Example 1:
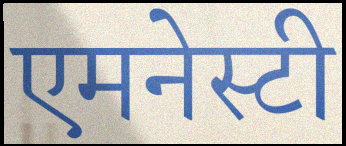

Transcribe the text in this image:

एमनेस्टी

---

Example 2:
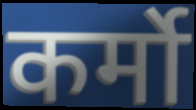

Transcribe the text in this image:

कर्मो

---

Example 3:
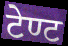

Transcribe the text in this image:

टेण्ट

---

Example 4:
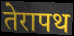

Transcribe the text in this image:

तेरापथ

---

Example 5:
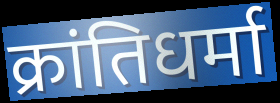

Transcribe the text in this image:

क्रांतिधर्मा